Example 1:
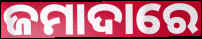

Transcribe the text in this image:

ଜମାଦାରେ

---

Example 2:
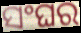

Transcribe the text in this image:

ସଂଘର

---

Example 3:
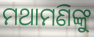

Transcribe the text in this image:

ମଥାମଣିଙ୍କୁ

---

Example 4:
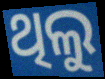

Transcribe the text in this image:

ଥିଲୁ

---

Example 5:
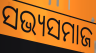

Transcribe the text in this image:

ସଭ୍ୟସମାଜ